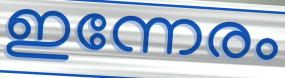
ഇന്നേരം